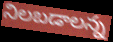
నిలబడాలన్న